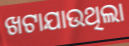
ଖଟାଯାଉଥିଲା